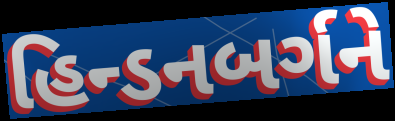
હિન્ડનબર્ગને